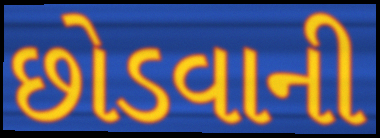
છોડવાની